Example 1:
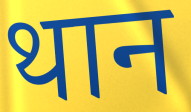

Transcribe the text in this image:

थान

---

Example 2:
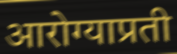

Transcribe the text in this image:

आरोग्याप्रती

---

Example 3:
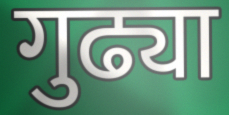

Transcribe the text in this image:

गुढ्या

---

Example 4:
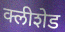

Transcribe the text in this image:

क्लीशेड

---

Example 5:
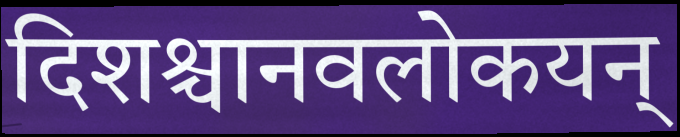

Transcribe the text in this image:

दिशश्चानवलोकयन्